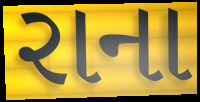
રાના